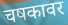
चषकावर